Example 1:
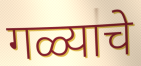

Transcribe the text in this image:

गळ्याचे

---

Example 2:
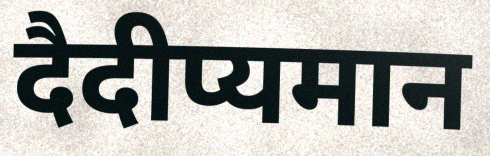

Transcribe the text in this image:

दैदीप्यमान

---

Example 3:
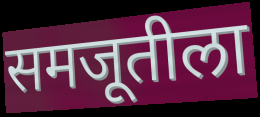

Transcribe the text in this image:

समजूतीला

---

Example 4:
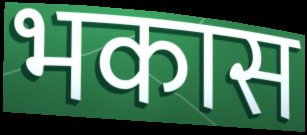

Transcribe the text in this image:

भकास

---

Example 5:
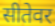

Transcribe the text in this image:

सीतेवर